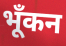
भूँकन